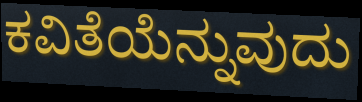
ಕವಿತೆಯೆನ್ನುವುದು